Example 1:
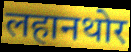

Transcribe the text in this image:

लहानथोर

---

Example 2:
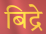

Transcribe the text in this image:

बिद्रे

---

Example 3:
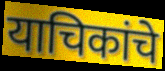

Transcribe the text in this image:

याचिकांचे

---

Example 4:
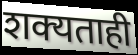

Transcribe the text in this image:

शक्‍यताही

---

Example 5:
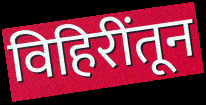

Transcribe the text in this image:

विहिरींतून